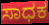
ಸಾಧಕ